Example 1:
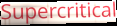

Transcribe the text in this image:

Supercritical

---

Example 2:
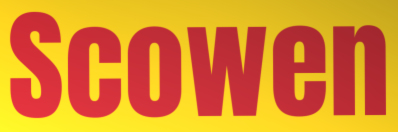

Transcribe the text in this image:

Scowen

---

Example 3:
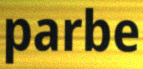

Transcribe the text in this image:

parbe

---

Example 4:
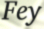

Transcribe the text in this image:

Fey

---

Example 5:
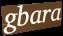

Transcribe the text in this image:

gbara